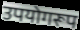
उपयोगरूप